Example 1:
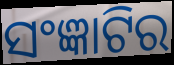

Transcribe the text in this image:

ସଂଜ୍ଞାଟିର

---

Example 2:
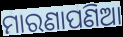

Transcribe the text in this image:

ମାରଣାପଣିଆ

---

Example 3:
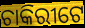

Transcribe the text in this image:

ଚାକିରୀଟେ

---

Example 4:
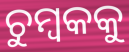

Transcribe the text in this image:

ଚୁମ୍ବକକୁ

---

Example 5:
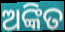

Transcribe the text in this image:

ଅଙ୍କିତ